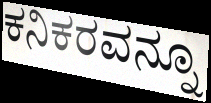
ಕನಿಕರವನ್ನೂ